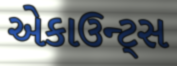
એકાઉન્ટ્સ